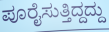
ಪೂರೈಸುತ್ತಿದ್ದದ್ದು